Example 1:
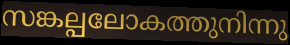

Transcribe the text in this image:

സങ്കല്പലോകത്തുനിന്നു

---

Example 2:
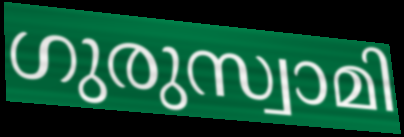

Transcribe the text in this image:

ഗുരുസ്വാമി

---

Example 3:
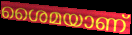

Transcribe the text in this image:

ശൈമയാണ്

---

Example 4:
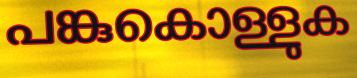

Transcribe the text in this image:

പങ്കുകൊള്ളുക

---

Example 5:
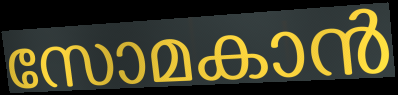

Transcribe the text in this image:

സോമകാൻ